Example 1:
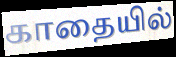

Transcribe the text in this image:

காதையில்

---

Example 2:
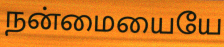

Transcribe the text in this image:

நன்மையையே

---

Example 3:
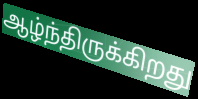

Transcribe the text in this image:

ஆழ்ந்திருக்கிறது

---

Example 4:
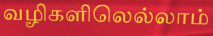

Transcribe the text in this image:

வழிகளிலெல்லாம்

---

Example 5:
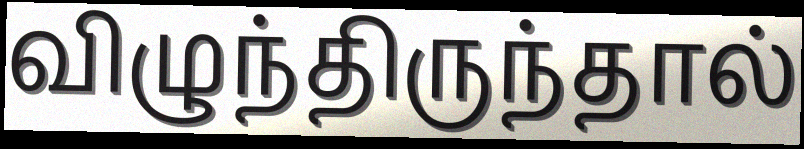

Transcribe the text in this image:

விழுந்திருந்தால்